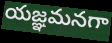
యజ్ఞమనగా